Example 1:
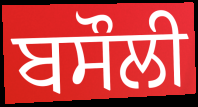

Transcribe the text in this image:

ਬਸੌਲੀ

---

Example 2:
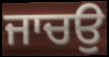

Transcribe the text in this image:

ਜਾਚਉ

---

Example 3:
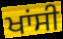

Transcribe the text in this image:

ਖਾਂਸੀ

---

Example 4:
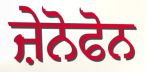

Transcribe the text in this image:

ਜ਼ੇਨੋਫੋਨ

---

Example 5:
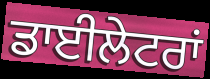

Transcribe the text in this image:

ਡਾਈਲੇਟਰਾਂ